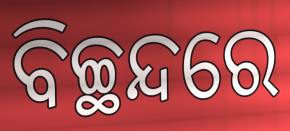
ବିଚ୍ଛନ୍ଦରେ